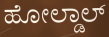
ಹೋಲ್ಡಾಲ್